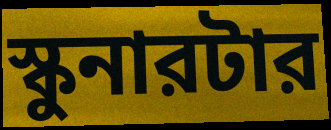
স্কুনারটার